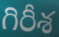
గిరీశ